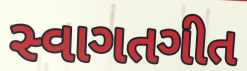
સ્વાગતગીત